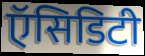
ऍसिडिटी